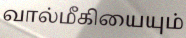
வால்மீகியையும்